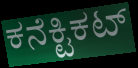
ಕನೆಕ್ಟಿಕಟ್